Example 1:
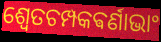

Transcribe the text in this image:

ଶ୍ଵେତଚମ୍ପକଵର୍ଣାଭାଂ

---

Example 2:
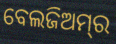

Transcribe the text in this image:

ବେଲଜିଅମ୍‌ର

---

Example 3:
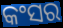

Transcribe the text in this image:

କଂସର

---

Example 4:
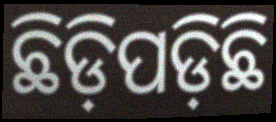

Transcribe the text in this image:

ଛିଡ଼ିପଡ଼ିଛି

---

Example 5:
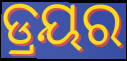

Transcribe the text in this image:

ଡ୍ରୟର